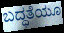
ಬದ್ಧತೆಯೂ